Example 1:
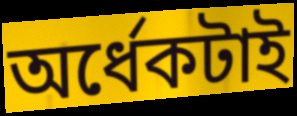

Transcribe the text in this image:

অর্ধেকটাই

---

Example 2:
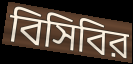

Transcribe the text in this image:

বিসিবির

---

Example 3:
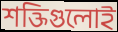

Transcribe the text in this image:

শক্তিগুলোই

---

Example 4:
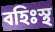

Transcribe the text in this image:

বহিঃস্থ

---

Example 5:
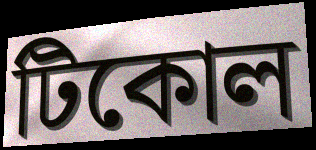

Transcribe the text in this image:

টিকোল